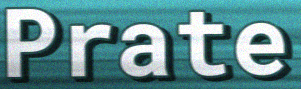
Prate